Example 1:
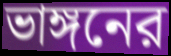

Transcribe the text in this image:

ভাঙ্গনের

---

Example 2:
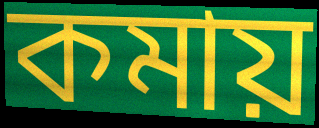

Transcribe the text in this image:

কমায়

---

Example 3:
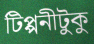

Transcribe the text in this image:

টিপ্পনীটুকু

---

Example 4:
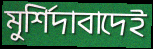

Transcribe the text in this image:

মুর্শিদাবাদেই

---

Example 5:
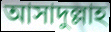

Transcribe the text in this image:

আসাদুল্লাহ